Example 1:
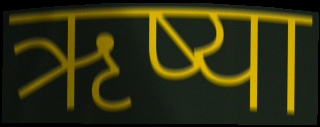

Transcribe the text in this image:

ऋष्या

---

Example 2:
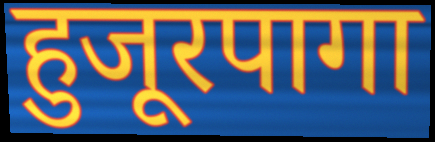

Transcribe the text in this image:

हुजूरपागा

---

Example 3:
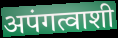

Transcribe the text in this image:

अपंगत्वाशी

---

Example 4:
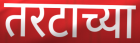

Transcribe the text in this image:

तरटाच्या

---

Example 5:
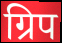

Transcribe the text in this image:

ग्रिप